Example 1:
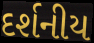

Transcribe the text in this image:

દર્શનીય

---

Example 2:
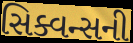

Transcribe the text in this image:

સિક્વન્સની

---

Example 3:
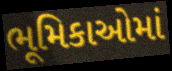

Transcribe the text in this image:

ભૂમિકાઓમાં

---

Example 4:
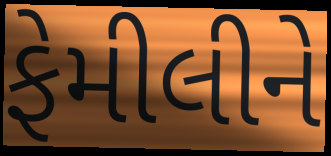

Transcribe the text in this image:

ફેમીલીને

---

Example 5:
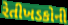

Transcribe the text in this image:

રેતીખડકોની